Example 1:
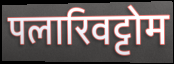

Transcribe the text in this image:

पलारिवट्टोम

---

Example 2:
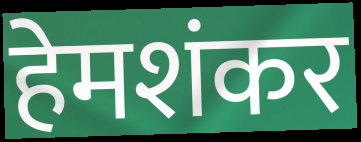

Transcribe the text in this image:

हेमशंकर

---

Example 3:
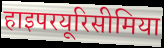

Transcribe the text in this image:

हाइपरयूरिसीमिया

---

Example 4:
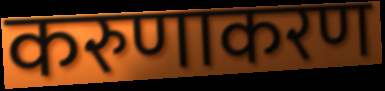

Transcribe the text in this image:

करुणाकरण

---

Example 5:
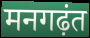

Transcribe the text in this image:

मनगढ़ंत